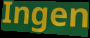
Ingen